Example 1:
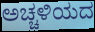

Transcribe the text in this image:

ಅಚ್ಚಳಿಯದ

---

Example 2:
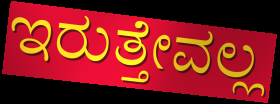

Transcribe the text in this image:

ಇರುತ್ತೇವಲ್ಲ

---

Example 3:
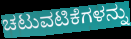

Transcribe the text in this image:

ಚಟುವಟಿಕೆಗಳನ್ನು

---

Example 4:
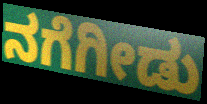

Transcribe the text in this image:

ನಗೆಗೀಡು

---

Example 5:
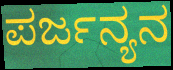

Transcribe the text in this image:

ಪರ್ಜನ್ಯನ